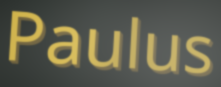
Paulus